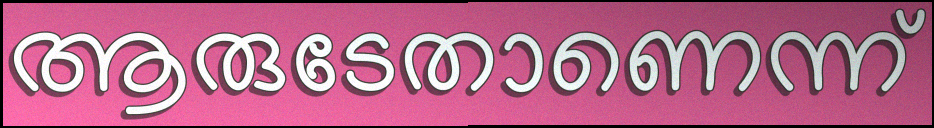
ആരുടേതാണെന്ന്